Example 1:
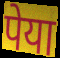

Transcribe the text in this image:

पेया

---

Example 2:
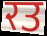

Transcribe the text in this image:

रउ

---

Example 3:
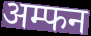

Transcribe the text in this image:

अम्फन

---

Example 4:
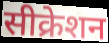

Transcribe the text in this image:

सीक्रेशन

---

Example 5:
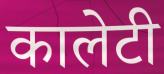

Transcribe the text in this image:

कालेटी